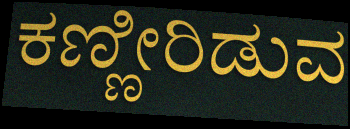
ಕಣ್ಣೀರಿಡುವ